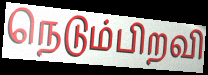
நெடும்பிறவி